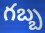
గబ్బ